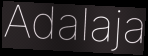
Adalaja